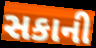
સકાની